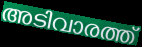
അടിവാരത്ത്